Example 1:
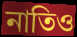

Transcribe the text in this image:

নাতিও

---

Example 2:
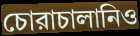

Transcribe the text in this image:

চোরাচালানিও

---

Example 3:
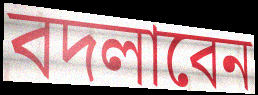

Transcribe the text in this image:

বদলাবেন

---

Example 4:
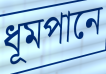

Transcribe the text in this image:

ধূমপানে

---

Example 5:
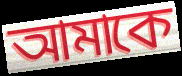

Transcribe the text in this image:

আমাকে